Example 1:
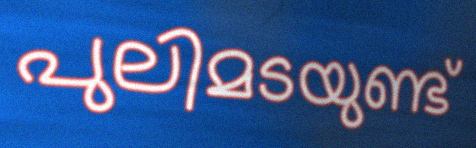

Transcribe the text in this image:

പുലിമടയുണ്ട്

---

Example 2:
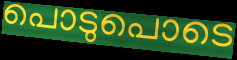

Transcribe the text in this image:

പൊടുപൊടെ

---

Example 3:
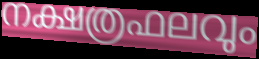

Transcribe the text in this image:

നക്ഷത്രഫലവും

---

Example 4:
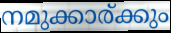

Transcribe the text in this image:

നമുക്കാര്ക്കും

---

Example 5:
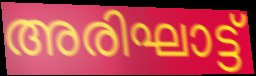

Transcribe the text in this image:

അരിഘാട്ട്